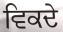
ਵਿਕਦੇ